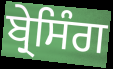
ਬ੍ਰੇਸਿੰਗ